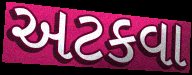
અટકવા